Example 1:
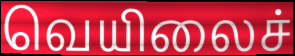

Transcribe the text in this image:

வெயிலைச்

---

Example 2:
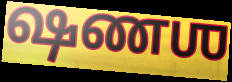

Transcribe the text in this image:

ஷணஶ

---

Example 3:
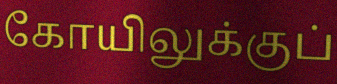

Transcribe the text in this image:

கோயிலுக்குப்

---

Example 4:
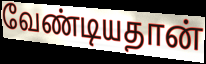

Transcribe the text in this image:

வேண்டியதான்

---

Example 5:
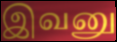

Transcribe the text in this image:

இவனு